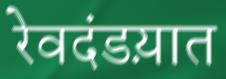
रेवदंडय़ात